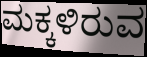
ಮಕ್ಕಳಿರುವ